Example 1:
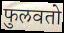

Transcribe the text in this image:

फुलवतो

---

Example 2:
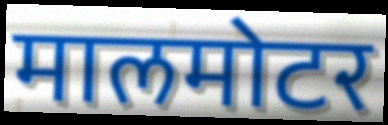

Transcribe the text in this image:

मालमोटर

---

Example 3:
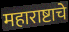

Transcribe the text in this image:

महाराष्टाचे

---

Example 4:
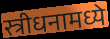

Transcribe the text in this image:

स्त्रीधनामध्ये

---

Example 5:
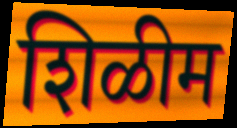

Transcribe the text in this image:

शिळीम